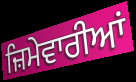
ਜ਼ਿਮੇਵਾਰੀਆਂ